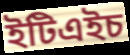
ইটিএইচ